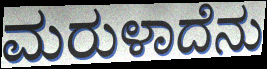
ಮರುಳಾದೆನು